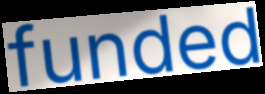
funded